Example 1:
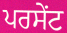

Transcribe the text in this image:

ਪਰਸੇੰਟ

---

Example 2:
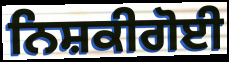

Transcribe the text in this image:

ਨਿਸ਼ਕੀਗੋਈ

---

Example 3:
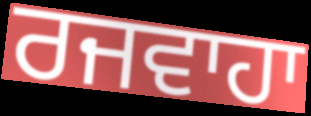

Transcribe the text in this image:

ਰਜਵਾਹਾ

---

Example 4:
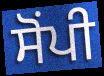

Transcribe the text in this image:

ਸੋੰਪੀ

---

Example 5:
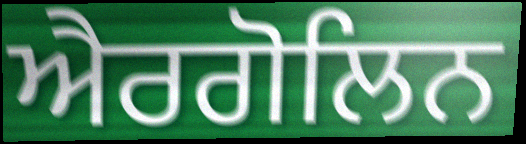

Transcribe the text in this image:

ਐਰਗੋਲਿਨ